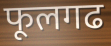
फूलगढ